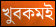
খুবকমই